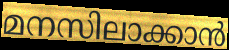
മനസിലാക്കാൻ